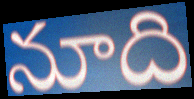
నూది